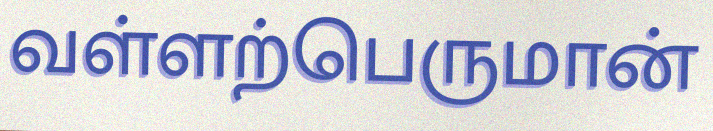
வள்ளற்பெருமான்